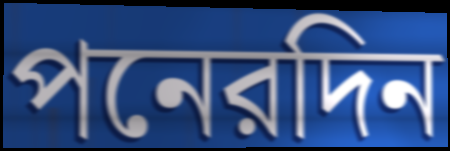
পনেরদিন